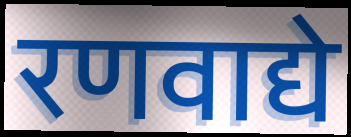
रणवाद्ये